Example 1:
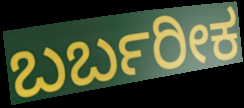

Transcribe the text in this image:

ಬರ್ಬರೀಕ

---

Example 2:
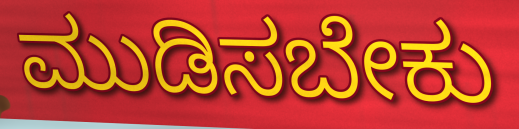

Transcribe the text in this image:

ಮುಡಿಸಬೇಕು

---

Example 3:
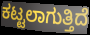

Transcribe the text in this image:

ಕಟ್ಟಲಾಗುತ್ತಿದೆ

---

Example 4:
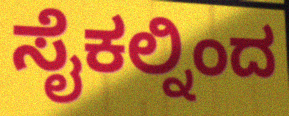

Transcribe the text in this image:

ಸೈಕಲ್ನಿಂದ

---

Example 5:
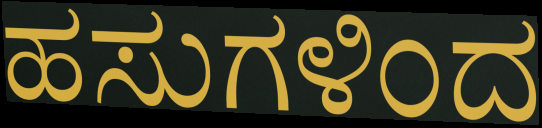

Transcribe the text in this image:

ಹಸುಗಳಿಂದ